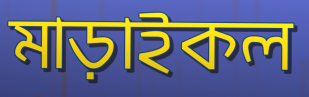
মাড়াইকল